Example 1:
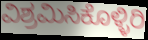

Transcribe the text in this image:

ವಿಶ್ರಮಿಸಿಕೊಳ್ಳಿರಿ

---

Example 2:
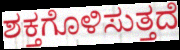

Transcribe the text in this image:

ಶಕ್ತಗೊಳಿಸುತ್ತದೆ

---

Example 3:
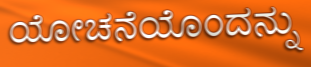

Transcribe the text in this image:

ಯೋಚನೆಯೊಂದನ್ನು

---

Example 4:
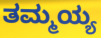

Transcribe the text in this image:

ತಮ್ಮಯ್ಯ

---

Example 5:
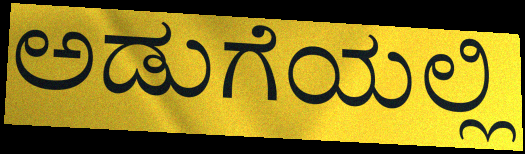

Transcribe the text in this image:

ಅಡುಗೆಯಲ್ಲಿ